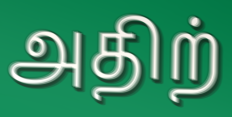
அதிற்